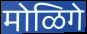
मोळिगे